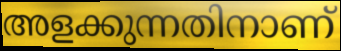
അളക്കുന്നതിനാണ്